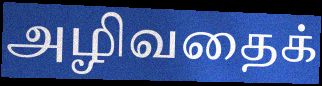
அழிவதைக்